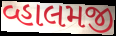
વ્હાલમજી